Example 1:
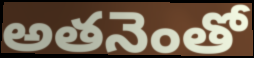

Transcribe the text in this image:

అతనెంతో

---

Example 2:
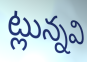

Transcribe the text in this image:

ట్లున్నవి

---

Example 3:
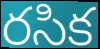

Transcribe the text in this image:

రసిక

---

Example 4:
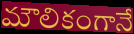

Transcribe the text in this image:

మౌలికంగానే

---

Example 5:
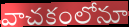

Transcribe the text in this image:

వాచకంలోనూ